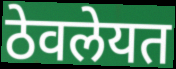
ठेवलेयत